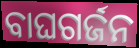
ବାଘଗର୍ଜନ